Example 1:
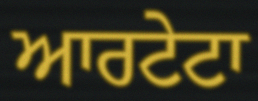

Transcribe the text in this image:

ਆਰਟੇਟਾ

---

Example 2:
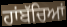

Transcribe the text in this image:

ਹਾਂਬੱਚਿਆਂ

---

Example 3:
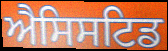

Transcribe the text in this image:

ਐਸਿਸਟਿਡ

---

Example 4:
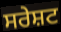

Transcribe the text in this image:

ਸਰੇਸ਼ਟ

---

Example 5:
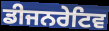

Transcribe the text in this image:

ਡੀਜਨਰੇਟਿਵ